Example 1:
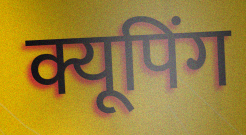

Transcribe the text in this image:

क्यूपिंग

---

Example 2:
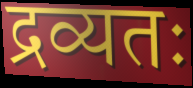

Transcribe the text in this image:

द्रव्यतः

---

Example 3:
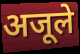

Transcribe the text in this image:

अजूले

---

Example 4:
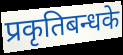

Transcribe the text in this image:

प्रकृतिबन्धके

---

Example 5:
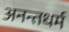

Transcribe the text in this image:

अनन्तधर्म